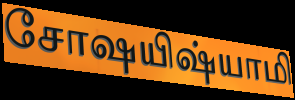
சோஷயிஷ்யாமி